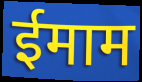
ईमाम